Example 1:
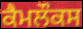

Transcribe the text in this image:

ਕੈਮਲੌਕਸ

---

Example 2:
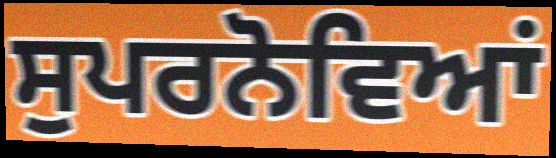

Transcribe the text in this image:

ਸੁਪਰਨੋਵਿਆਂ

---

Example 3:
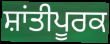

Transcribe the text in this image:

ਸ਼ਾਂਤੀਪੂਰਕ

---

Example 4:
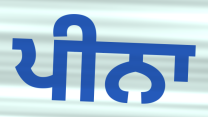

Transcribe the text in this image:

ਪੀਨਾ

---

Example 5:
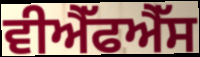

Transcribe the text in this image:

ਵੀਐੱਫਐੱਸ